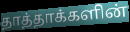
தாத்தாக்களின்